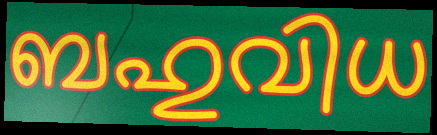
ബഹുവിധ